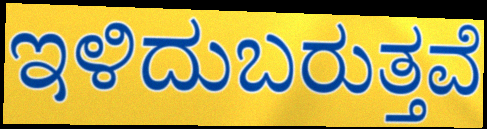
ಇಳಿದುಬರುತ್ತವೆ